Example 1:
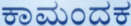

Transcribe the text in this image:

ಕಾಮಂದಕ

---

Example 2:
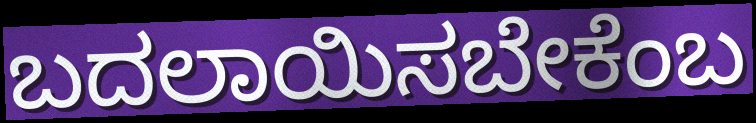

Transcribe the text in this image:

ಬದಲಾಯಿಸಬೇಕೆಂಬ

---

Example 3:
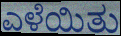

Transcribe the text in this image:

ಎಳೆಯಿತು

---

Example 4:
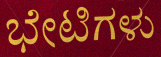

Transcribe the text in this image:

ಭೇಟಿಗಳು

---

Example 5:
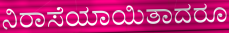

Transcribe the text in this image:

ನಿರಾಸೆಯಾಯಿತಾದರೂ